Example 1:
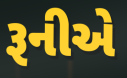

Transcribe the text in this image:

રૂનીએ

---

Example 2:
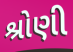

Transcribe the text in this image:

શ્રોણી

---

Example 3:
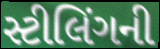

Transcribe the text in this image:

સ્ટીલિંગની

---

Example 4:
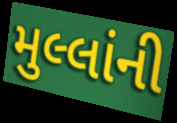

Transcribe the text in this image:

મુલ્લાંની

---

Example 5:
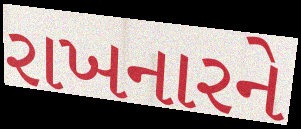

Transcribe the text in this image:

રાખનારને